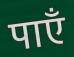
पाएँ